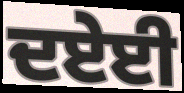
ਦਏਈ